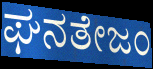
ಘನತೇಜಂ